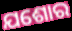
ଯଶୋର